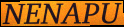
NENAPU